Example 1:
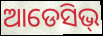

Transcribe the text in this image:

ଆଡେସିଭ୍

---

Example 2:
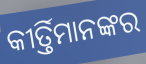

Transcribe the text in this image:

କୀର୍ତ୍ତିମାନଙ୍କର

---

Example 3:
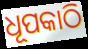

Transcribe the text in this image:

ଧୂପକାଠି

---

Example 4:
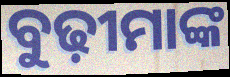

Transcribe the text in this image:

ବୁଢ଼ୀମାଙ୍କ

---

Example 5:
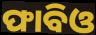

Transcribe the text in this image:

ଫାବିଓ